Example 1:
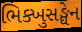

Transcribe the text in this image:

ભિક્ખુસઙ્ઘેન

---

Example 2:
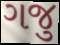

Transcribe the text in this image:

ગજુ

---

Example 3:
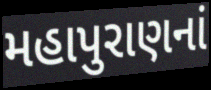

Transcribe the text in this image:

મહાપુરાણનાં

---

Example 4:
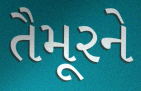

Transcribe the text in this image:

તૈમૂરને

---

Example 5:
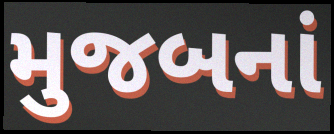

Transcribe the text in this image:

મુજબનાં